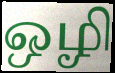
ஒழி